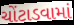
ચોંટાડવામાં